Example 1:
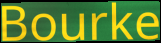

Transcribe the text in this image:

Bourke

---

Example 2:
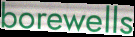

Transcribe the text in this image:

borewells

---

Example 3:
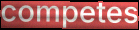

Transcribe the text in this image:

competes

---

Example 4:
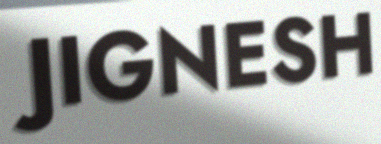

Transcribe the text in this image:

JIGNESH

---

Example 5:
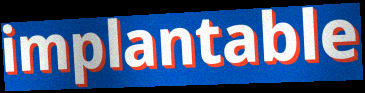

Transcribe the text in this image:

implantable